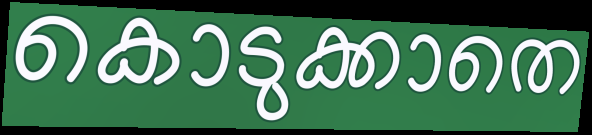
കൊടുക്കാതെ